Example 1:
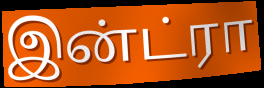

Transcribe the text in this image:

இன்ட்ரா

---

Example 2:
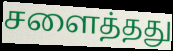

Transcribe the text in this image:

சளைத்தது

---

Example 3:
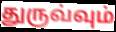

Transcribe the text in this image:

துருவ்வும்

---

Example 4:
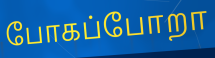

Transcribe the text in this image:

போகப்போறா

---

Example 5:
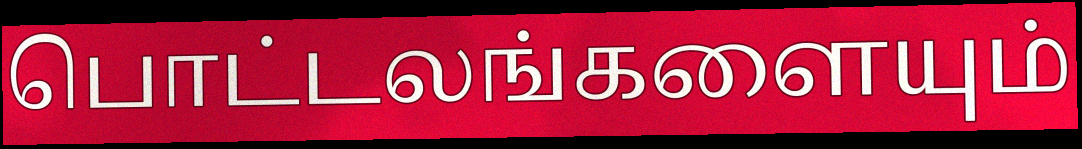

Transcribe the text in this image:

பொட்டலங்களையும்